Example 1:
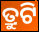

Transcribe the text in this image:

ତ୍ରୁଟି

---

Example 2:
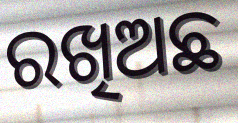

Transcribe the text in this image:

ରଖିଅଛ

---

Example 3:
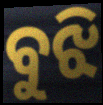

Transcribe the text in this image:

ବୁଝି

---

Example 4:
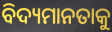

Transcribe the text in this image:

ବିଦ୍ୟମାନତାକୁ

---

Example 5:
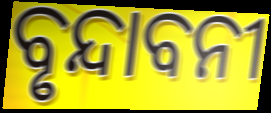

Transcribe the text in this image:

ବୃନ୍ଦାବନୀ